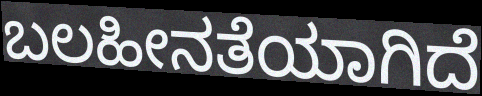
ಬಲಹೀನತೆಯಾಗಿದೆ